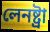
লেনষ্ট্ৰা